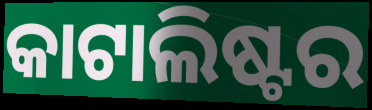
କାଟାଲିଷ୍ଟର